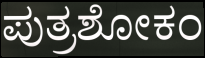
ಪುತ್ರಶೋಕಂ